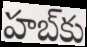
హబ్‌కు